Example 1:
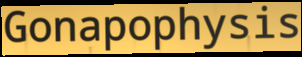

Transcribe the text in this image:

Gonapophysis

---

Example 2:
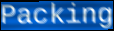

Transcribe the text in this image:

Packing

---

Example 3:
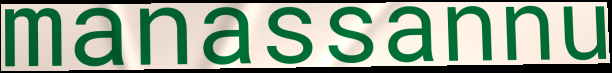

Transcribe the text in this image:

manassannu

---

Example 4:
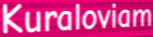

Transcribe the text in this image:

Kuraloviam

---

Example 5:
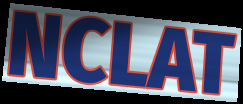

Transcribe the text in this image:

NCLAT